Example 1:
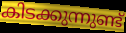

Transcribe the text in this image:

കിടക്കുന്നുണ്ട്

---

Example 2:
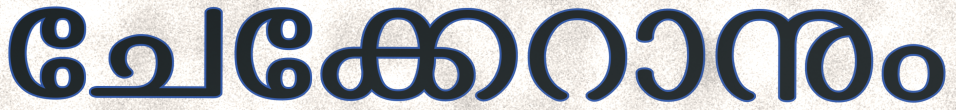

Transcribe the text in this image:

ചേക്കേറാനും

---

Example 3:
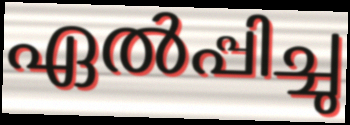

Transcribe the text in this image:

ഏൽപ്പിച്ചു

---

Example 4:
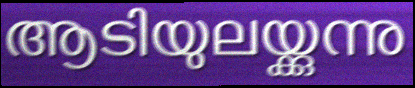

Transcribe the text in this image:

ആടിയുലയ്ക്കുന്നു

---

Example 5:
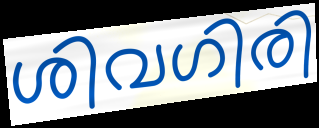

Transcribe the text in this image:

ശിവഗിരി